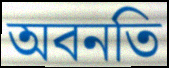
অবনতি